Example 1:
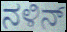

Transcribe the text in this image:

ನಳಿನ್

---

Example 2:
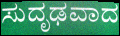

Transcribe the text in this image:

ಸುದೃಢವಾದ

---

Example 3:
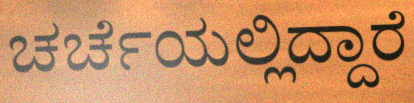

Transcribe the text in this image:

ಚರ್ಚೆಯಲ್ಲಿದ್ದಾರೆ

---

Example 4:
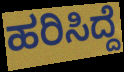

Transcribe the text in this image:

ಹರಿಸಿದ್ದೆ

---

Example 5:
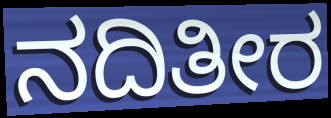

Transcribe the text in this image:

ನದಿತೀರ